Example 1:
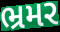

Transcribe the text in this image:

ભ્રમર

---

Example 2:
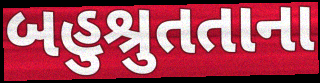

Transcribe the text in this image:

બહુશ્રુતતાના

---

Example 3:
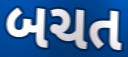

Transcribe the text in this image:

બચત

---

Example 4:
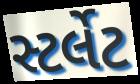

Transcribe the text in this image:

સ્ટર્લેટ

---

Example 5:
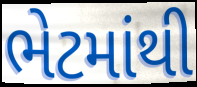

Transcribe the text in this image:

ભેટમાંથી